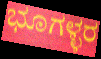
ಭೂಗಳ್ಳರ